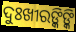
ଦୁଃଖୀରଙ୍କିଙ୍କି